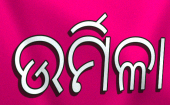
ଉର୍ମିଳା